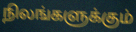
நிலங்களுக்கும்